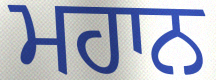
ਮਹਾਨ